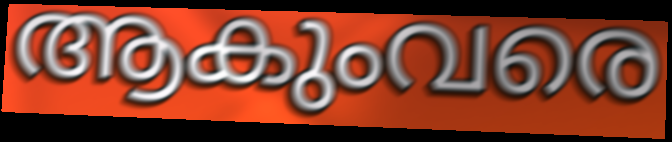
ആകുംവരെ